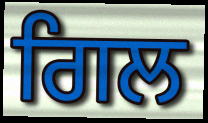
ਗਿਲ